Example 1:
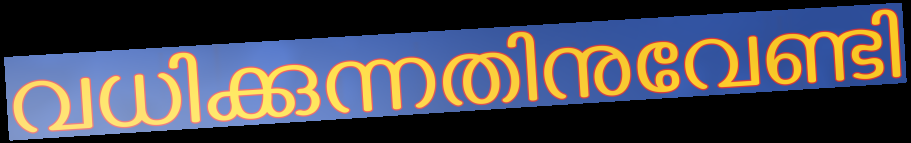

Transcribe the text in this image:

വധിക്കുന്നതിനുവേണ്ടി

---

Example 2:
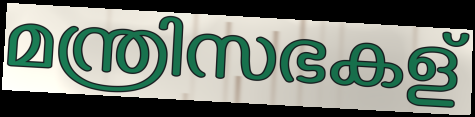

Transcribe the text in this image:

മന്ത്രിസഭകള്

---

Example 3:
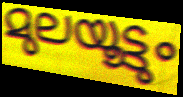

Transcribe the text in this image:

മുലയൂട്ടും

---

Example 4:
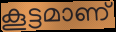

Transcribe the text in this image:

കൂട്ടമാണ്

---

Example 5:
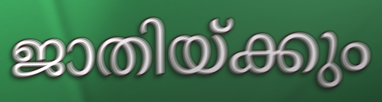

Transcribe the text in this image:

ജാതിയ്ക്കും